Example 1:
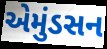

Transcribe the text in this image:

એમુંડસન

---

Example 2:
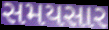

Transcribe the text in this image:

સમયસાર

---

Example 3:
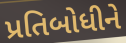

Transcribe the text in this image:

પ્રતિબોધીને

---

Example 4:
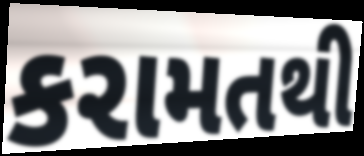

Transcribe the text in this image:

કરામતથી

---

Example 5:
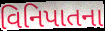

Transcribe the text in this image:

વિનિપાતના